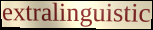
extralinguistic